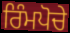
ਰਿੰਮਪੋਚੇ